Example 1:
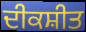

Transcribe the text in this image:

ਦੀਕਸ਼ੀਤ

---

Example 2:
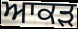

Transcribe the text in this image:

ਆਕੜ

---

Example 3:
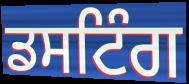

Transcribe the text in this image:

ਡਸਟਿੰਗ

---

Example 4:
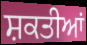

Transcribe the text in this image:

ਸ਼ਕਤੀਆਂ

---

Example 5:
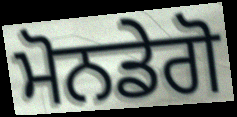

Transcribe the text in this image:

ਮੋਨਡੇਗੋ